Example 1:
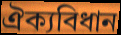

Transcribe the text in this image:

ঐক্যবিধান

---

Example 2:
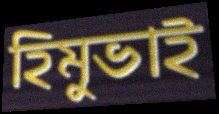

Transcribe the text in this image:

হিমুভাই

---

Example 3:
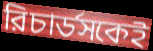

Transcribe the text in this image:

রিচার্ডসকেই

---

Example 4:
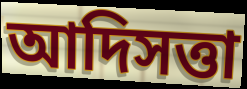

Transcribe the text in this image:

আদিসত্তা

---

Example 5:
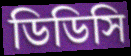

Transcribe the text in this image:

ডিডিসি